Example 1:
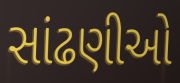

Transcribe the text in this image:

સાંઢણીઓ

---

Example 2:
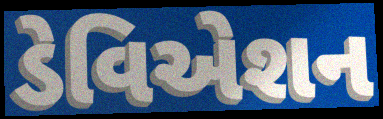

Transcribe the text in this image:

ડેવિએશન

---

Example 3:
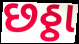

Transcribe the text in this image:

છઠ્ઠા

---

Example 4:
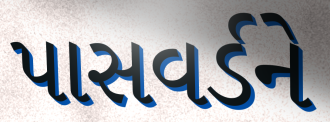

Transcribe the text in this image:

પાસવર્ડને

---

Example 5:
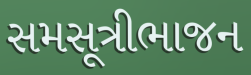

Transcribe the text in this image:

સમસૂત્રીભાજન